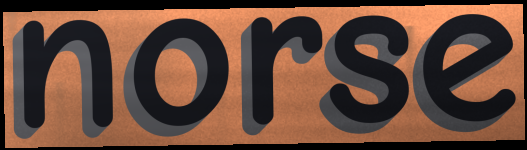
norse